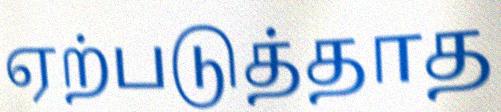
ஏற்படுத்தாத